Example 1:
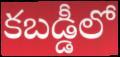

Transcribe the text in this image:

కబడ్డీలో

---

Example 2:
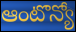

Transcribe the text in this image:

ఆంటొన్యో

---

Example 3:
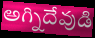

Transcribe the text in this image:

అగ్నిదేవుడి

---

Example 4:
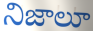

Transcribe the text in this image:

నిజాలూ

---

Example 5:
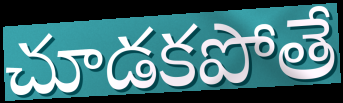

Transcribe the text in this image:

చూడకపోతే